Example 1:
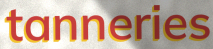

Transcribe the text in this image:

tanneries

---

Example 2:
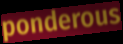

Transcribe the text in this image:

ponderous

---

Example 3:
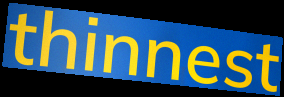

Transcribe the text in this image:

thinnest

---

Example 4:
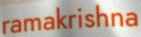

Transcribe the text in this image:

ramakrishna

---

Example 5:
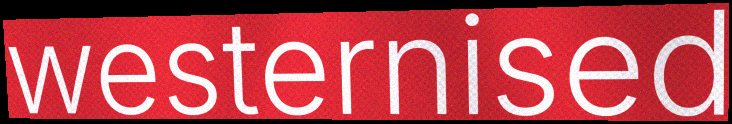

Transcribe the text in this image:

westernised